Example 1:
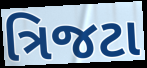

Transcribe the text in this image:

ત્રિજટા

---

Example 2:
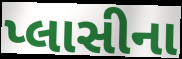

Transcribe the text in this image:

પ્લાસીના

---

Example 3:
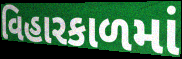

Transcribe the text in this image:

વિહારકાળમાં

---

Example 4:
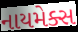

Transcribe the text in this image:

નાયમેક્સ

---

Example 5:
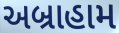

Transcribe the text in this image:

અબ્રાહામ